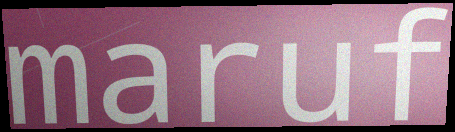
maruf